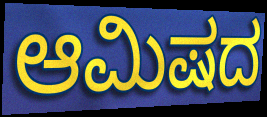
ಆಮಿಷದ